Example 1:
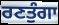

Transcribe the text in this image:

ਰਣਤੁੰਗਾ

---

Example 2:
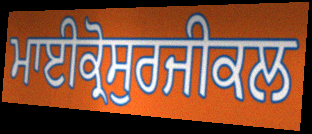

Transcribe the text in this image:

ਮਾਈਕ੍ਰੋਸੁਰਜੀਕਲ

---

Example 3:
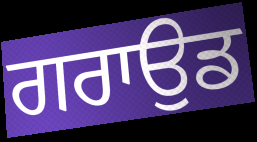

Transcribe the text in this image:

ਗਰਾਉਡ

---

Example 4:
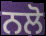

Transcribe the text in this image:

ਨਲੋ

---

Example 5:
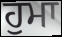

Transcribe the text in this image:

ਹੁਮਾ